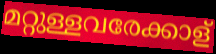
മറ്റുള്ളവരേക്കാള്